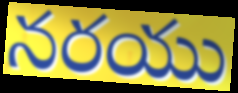
నరయు